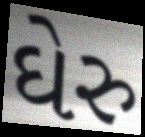
ઘેરુ